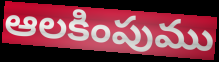
ఆలకింపుము